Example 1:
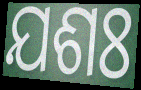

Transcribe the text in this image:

ଯଶଃ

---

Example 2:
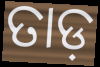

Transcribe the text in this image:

ତାଡ଼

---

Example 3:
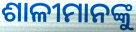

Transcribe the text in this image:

ଶାଳୀମାନଙ୍କୁ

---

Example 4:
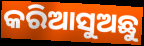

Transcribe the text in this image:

କରିଆସୁଅଛୁ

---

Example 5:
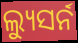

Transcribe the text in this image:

ଲ୍ୟୁସର୍ନ